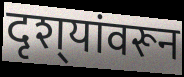
दृश्यांवरून